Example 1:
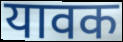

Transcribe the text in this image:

यावक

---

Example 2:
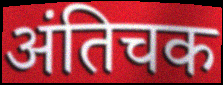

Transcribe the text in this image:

अंतिचक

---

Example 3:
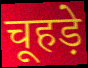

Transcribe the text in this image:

चूहड़े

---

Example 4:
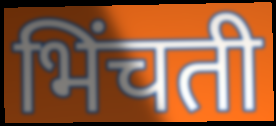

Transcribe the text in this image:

भिंचती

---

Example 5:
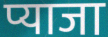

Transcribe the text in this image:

प्याजा